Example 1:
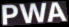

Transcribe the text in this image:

PWA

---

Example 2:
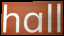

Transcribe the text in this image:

hall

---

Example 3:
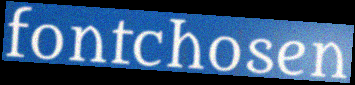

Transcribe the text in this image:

fontchosen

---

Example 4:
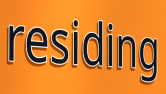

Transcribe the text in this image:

residing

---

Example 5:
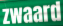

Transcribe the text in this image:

zwaard